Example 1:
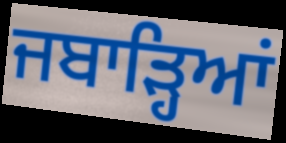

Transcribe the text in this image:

ਜਬਾੜ੍ਹਿਆਂ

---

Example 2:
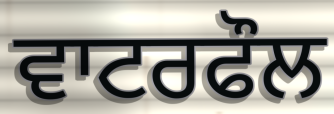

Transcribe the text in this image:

ਵਾਟਰਫੌਲ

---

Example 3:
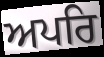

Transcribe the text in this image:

ਅਪਰਿ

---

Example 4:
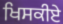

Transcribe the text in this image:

ਖਿਸਕੀਏ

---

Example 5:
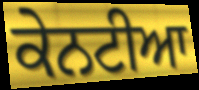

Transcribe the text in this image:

ਕੇਨਟੀਆ